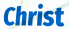
Christ